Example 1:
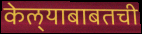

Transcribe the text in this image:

केल्याबाबतची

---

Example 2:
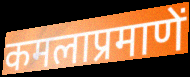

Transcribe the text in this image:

कमलाप्रमाणें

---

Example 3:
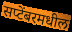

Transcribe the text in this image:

सप्टेंबरमधील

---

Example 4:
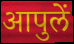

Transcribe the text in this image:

आपुलें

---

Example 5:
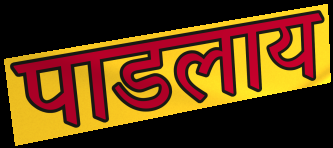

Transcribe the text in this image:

पाडलाय